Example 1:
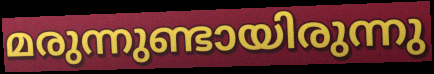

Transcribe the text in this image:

മരുന്നുണ്ടായിരുന്നു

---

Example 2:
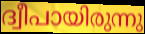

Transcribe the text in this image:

ദ്വീപായിരുന്നു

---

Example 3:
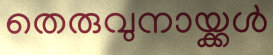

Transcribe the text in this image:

തെരുവുനായ്ക്കൾ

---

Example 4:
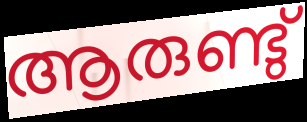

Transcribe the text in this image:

ആരുണ്ടു്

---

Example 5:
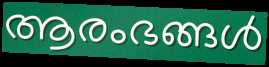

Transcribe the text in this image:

ആരംഭങ്ങൾ